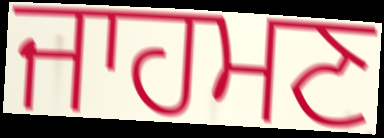
ਜਾਹਮਣ